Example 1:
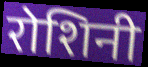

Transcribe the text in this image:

रोशिनी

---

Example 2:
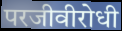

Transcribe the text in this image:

परजीवीरोधी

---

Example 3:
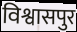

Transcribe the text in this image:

विश्वासपुर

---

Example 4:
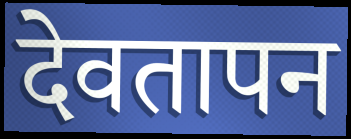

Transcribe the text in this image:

देवतापन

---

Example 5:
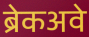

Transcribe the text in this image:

ब्रेकअवे